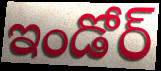
ఇండోర్